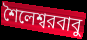
শৈলেশ্বরবাবু